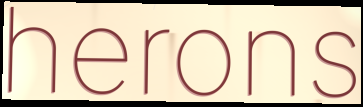
herons